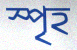
স্পৃহ